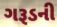
ગરૂડની